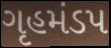
ગૃહમંડપ